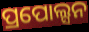
ପ୍ରପୋଲ୍ସନ